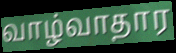
வாழ்வாதார